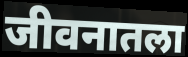
जीवनातला